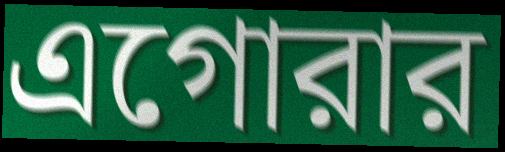
এগোরার